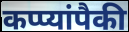
कप्प्यांपैकी